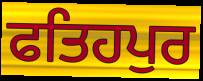
ਫਤਿਹਪੁਰ